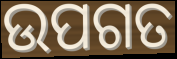
ଉପଗତ